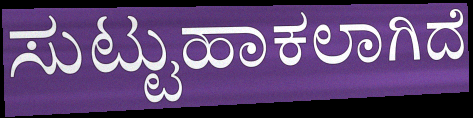
ಸುಟ್ಟುಹಾಕಲಾಗಿದೆ